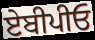
ਏਬੀਪੀਓ